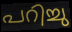
പറിച്ചു